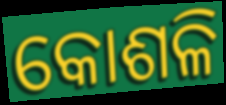
କୋଶଳି